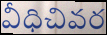
వీధిచివర